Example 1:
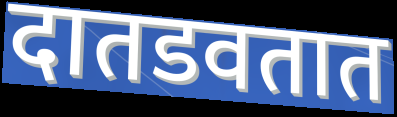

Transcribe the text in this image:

दातडवतात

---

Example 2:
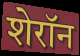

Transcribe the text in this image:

शेरॉन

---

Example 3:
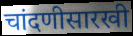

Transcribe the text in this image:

चांदणीसारखी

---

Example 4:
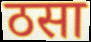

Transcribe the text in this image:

ठसा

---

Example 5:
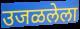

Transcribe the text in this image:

उजळलेला